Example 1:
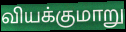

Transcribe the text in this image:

வியக்குமாறு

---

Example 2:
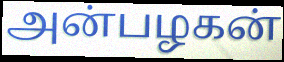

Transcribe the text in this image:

அன்பழகன்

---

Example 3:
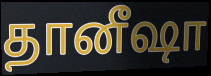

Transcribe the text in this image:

தானீஷா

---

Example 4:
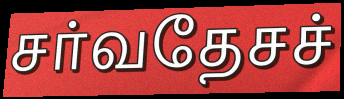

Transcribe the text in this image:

சர்வதேசச்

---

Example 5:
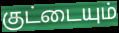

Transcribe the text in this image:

குட்டையும்